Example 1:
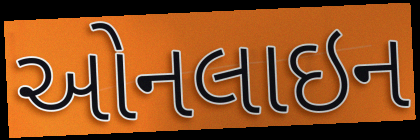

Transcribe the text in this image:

ઓનલાઇન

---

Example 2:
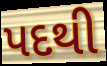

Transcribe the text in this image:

પદથી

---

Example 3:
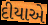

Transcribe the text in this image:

દીયાએ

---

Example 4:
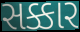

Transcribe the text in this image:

સક્કાર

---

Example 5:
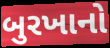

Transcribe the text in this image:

બુરખાનો